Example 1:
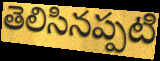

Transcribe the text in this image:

తెలిసినప్పటి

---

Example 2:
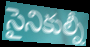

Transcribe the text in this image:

సైనికుల్నీ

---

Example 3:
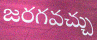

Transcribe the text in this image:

జరగవచ్చు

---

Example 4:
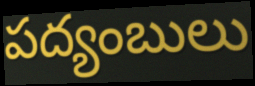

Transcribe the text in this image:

పద్యంబులు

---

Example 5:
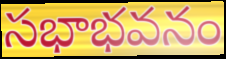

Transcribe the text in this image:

సభాభవనం